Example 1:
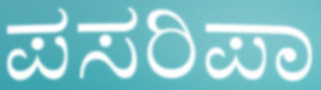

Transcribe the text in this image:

ಪಸರಿಪಾ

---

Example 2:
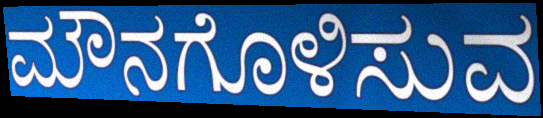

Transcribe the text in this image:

ಮೌನಗೊಳಿಸುವ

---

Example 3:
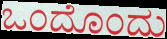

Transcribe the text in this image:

ಒಂದೊಂದು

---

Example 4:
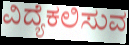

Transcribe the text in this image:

ವಿದ್ಯೆಕಲಿಸುವ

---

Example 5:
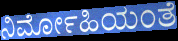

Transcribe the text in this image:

ನಿರ್ಮೋಹಿಯಂತೆ